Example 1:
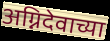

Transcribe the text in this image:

अग्निदेवाच्या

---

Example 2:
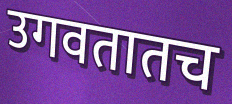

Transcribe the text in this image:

उगवतातच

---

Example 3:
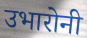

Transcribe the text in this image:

उभारोनी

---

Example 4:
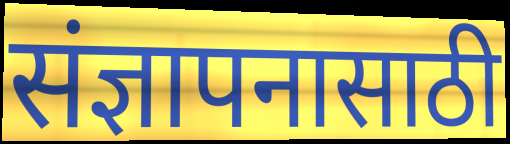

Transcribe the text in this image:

संज्ञापनासाठी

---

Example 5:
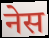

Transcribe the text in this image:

नेस